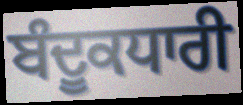
ਬੰਦੂਕਧਾਰੀ